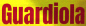
Guardiola